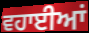
ਵਹਾਈਆਂ